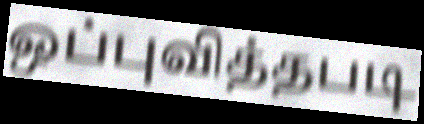
ஒப்புவித்தபடி